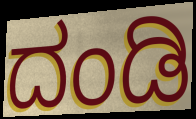
ದಂಡಿ